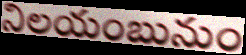
నిలయంబునుం